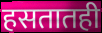
हसतातही